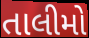
તાલીમો